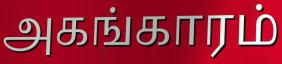
அகங்காரம்